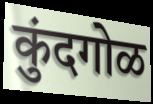
कुंदगोळ